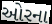
ઓરના